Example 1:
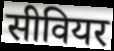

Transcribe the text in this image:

सीवियर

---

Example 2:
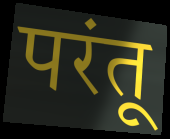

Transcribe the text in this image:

परंतू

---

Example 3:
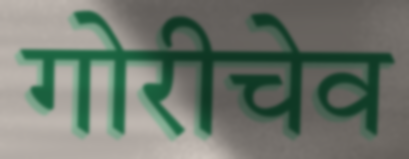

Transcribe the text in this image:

गोरीचेव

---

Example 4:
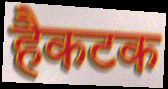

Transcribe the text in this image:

हैकटक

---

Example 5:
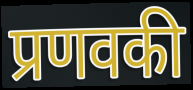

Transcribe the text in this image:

प्रणवकी